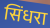
सिंधरा